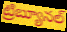
ట్రిబ్యూనల్